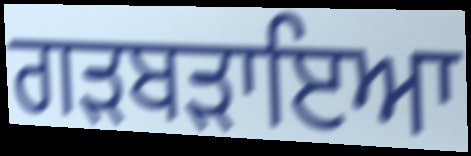
ਗੜਬੜਾਇਆ